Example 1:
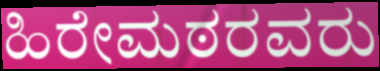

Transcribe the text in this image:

ಹಿರೇಮಠರವರು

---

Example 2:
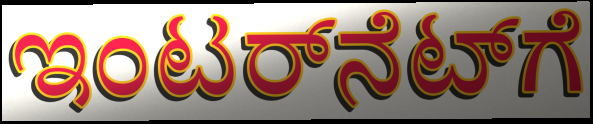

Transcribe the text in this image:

ಇಂಟರ್‌ನೆಟ್‌ಗೆ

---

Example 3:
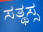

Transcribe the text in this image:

ಸತ್ಥಸ್ಸ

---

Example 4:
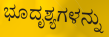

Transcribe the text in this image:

ಭೂದೃಶ್ಯಗಳನ್ನು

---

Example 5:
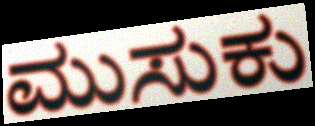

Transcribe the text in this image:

ಮುಸುಕು